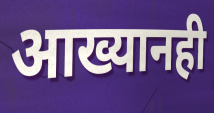
आख्यानही